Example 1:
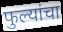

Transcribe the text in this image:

फुल्यांचा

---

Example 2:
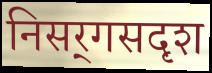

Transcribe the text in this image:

निसर्गसदृश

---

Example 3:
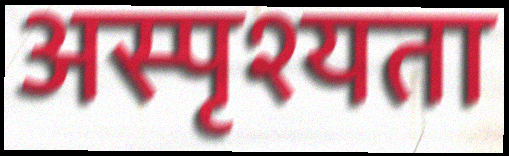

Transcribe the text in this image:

अस्पृश्यता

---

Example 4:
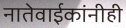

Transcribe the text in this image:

नातेवाईकांनीही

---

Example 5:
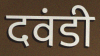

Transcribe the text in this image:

दवंडी